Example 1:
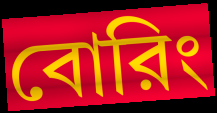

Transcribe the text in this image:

বোরিং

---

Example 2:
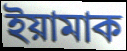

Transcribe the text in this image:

ইয়ামাক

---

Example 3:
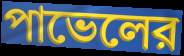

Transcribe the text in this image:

পাভেলের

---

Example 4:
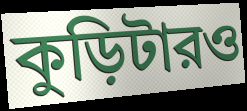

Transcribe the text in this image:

কুড়িটারও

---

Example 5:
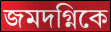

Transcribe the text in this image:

জমদগ্নিকে